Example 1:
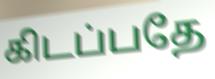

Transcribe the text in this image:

கிடப்பதே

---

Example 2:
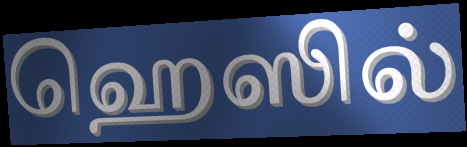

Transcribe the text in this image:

ஹெஸில்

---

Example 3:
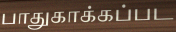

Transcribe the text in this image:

பாதுகாக்கப்பட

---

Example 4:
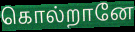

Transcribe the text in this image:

கொல்றானே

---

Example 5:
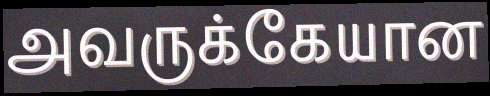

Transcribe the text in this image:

அவருக்கேயான